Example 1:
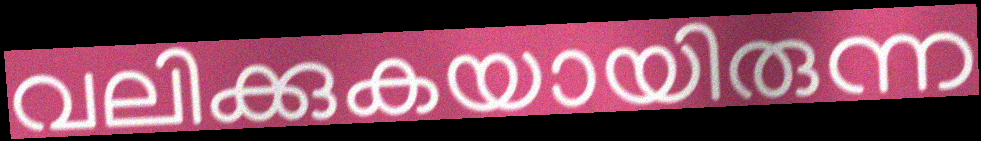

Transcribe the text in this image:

വലിക്കുകയായിരുന്ന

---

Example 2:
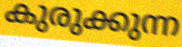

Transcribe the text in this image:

കുരുക്കുന്ന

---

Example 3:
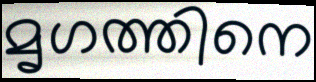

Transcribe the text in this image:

മൃഗത്തിനെ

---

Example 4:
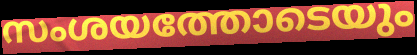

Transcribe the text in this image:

സംശയത്തോടെയും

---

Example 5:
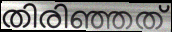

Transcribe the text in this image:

തിരിഞ്ഞത്